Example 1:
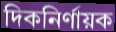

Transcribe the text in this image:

দিকনির্ণায়ক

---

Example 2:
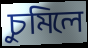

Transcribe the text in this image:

চুমিলে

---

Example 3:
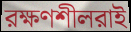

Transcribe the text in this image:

রক্ষণশীলরাই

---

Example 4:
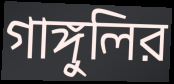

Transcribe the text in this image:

গাঙ্গুলির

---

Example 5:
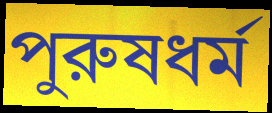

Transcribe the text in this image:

পুরুষধর্ম